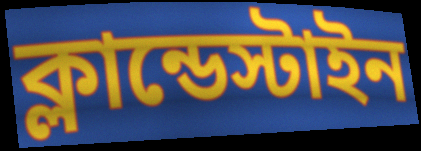
ক্লান্ডেস্টাইন